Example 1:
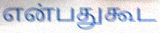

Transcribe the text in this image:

என்பதுகூட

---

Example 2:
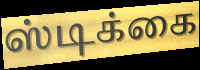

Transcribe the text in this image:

ஸ்டிக்கை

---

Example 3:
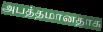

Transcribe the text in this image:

அபத்தமானதாக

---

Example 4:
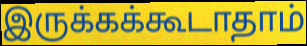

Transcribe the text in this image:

இருக்கக்கூடாதாம்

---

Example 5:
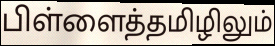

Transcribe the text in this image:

பிள்ளைத்தமிழிலும்